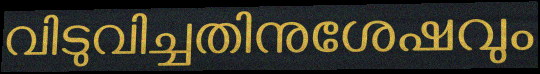
വിടുവിച്ചതിനുശേഷവും